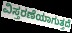
ವಿಸ್ತರಣೆಯಾಗುತ್ತದೆ